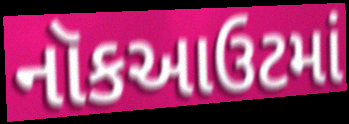
નૉકઆઉટમાં